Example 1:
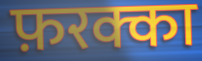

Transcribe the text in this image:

फ़रक्का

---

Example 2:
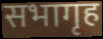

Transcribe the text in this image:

सभागृह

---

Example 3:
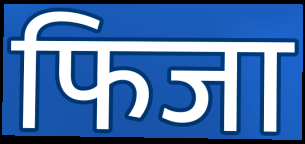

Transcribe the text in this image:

फिजा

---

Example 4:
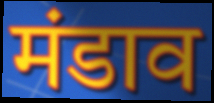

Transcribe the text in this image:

मंडाव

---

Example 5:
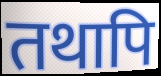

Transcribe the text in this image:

तथापि